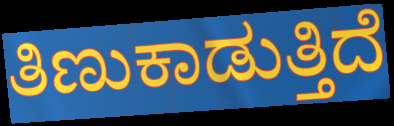
ತಿಣುಕಾಡುತ್ತಿದೆ